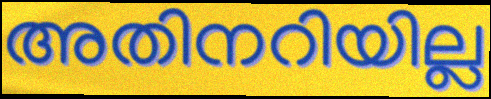
അതിനറിയില്ല